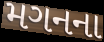
મગનના